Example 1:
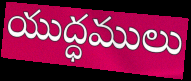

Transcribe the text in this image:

యుద్ధములు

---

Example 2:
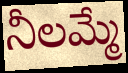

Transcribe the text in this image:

నీలమ్మే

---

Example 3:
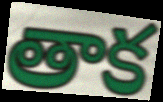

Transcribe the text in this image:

తాక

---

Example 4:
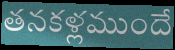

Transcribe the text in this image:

తనకళ్లముందే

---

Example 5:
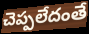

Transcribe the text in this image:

చెప్పలేదంతే